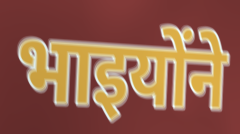
भाइयोंने